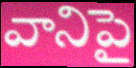
వానిపై